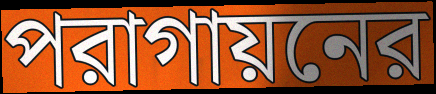
পরাগায়নের